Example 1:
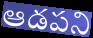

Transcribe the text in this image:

ఆడపని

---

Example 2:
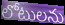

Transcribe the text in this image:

లోటులను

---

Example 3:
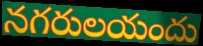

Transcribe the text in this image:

నగరులయందు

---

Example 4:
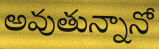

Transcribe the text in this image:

అవుతున్నానో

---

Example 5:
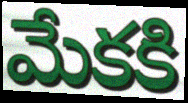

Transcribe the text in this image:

మేకకి